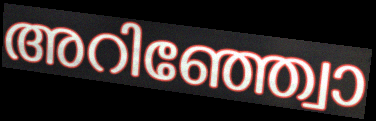
അറിഞ്ഞ്വോ